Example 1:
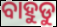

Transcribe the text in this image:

ବାହୁଡୁ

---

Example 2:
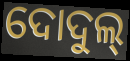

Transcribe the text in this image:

ଦୋଦୁଲ୍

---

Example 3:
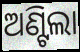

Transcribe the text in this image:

ଅଣ୍ଟିଲା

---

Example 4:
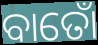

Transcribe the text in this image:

ବାତୋଁ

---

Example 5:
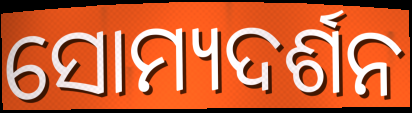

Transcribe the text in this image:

ସୋମ୍ଯଦର୍ଶନ